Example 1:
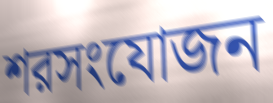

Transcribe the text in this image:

শরসংযোজন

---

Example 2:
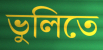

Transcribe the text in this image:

ভুলিতে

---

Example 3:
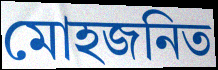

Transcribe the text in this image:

মোহজনিত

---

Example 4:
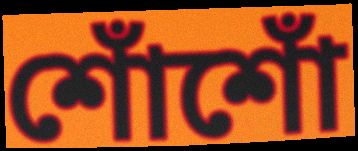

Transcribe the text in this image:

শোঁশোঁ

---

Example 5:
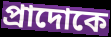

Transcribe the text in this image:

প্রাদোকে